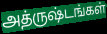
அத்ருஷ்டங்கள்